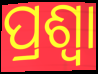
ପ୍ରଶ୍ଵା